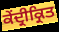
ਕੇਂਦ੍ਰੀਕ੍ਰਿਤ